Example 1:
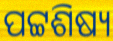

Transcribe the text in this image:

ପଟ୍ଟଶିଷ୍ୟ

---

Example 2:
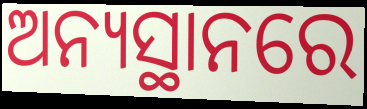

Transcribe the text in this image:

ଅନ୍ୟସ୍ଥାନରେ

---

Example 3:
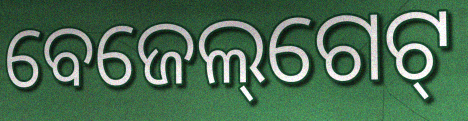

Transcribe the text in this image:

ବେଜେଲ୍‌ଗେଟ୍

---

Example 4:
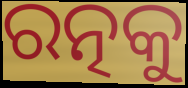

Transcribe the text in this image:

ରତ୍ନକୁ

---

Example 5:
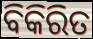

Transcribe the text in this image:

ବିକିରିତ